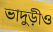
ভাদুড়ীও